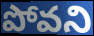
పోవని